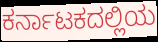
ಕರ್ನಾಟಕದಲ್ಲಿಯ